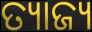
ତ୍ୟାଜ୍ୟ